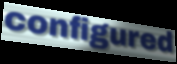
configured